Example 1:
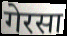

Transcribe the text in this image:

गेरसा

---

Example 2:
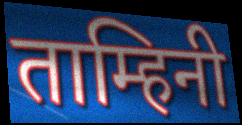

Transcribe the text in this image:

ताम्हिनी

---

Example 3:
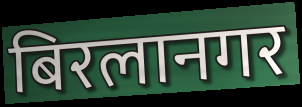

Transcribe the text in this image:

बिरलानगर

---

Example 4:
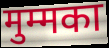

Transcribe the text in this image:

मुम्मका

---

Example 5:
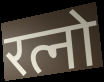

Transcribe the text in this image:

रत्नो